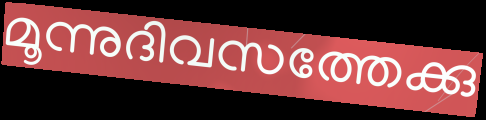
മൂന്നുദിവസത്തേക്കു